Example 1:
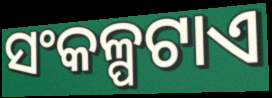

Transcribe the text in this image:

ସଂକଳ୍ପଟାଏ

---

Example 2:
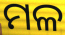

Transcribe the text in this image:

ମଳ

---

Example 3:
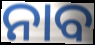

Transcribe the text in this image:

ନାବ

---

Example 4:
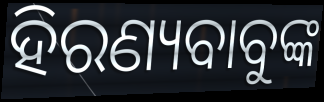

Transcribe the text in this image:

ହିରଣ୍ୟବାବୁଙ୍କ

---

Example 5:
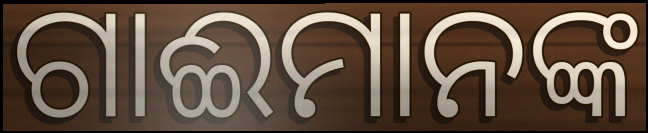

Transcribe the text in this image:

ଗାଈମାନଙ୍କ